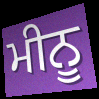
ਮੀਨੂ